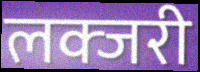
लक्‍जरी